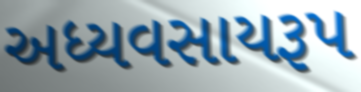
અધ્યવસાયરૂપ